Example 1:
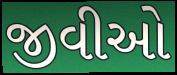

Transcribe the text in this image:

જીવીઓ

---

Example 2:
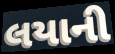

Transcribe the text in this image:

લયાની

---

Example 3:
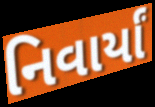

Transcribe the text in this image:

નિવાર્યાં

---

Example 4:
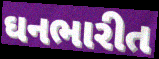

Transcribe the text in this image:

ઘનભારીત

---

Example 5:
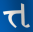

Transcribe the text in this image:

ત્ત